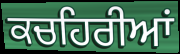
ਕਚਹਿਰੀਆਂ